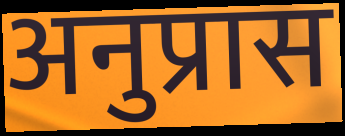
अनुप्रास